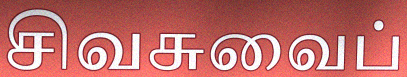
சிவசுவைப்